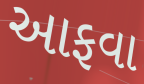
આફવા